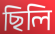
ছিলি